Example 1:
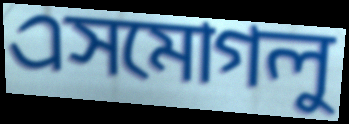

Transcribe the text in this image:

এসমোগলু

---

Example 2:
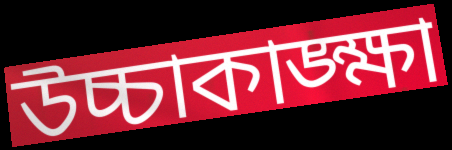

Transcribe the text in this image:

উচ্চাকাঙ্ক্ষা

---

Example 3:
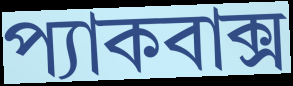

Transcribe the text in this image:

প্যাকবাক্স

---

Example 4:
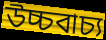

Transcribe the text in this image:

উচ্চবাচ্য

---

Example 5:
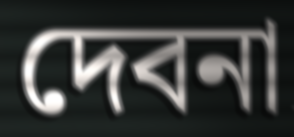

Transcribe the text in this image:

দেবনা